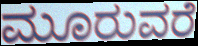
ಮೂರುವರೆ